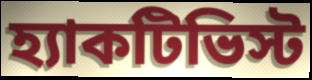
হ্যাকটিভিস্ট